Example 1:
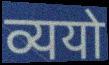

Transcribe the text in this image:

व्ययो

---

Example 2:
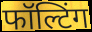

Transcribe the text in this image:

फॉल्टिंग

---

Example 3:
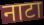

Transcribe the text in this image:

नाटा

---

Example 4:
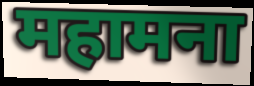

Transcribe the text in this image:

महामना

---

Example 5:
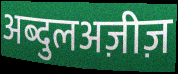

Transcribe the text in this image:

अब्दुलअज़ीज़